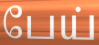
பேய்